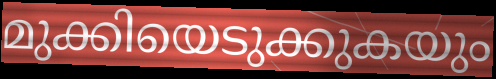
മുക്കിയെടുക്കുകയും